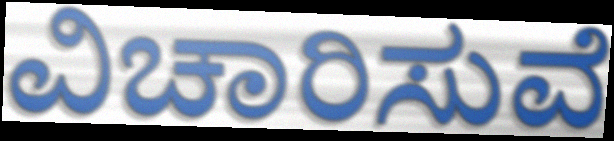
ವಿಚಾರಿಸುವೆ